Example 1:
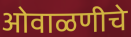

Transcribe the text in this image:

ओवाळणीचे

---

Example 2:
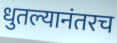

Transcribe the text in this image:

धुतल्यानंतरच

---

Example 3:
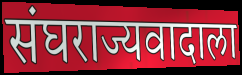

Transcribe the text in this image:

संघराज्यवादाला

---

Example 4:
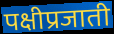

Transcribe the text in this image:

पक्षीप्रजाती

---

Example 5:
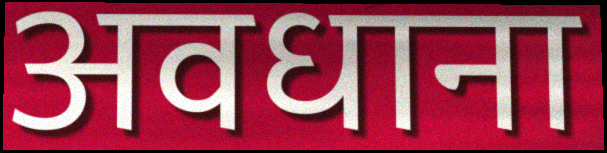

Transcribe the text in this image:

अवधाना